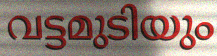
വട്ടമുടിയും